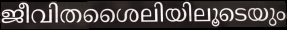
ജീവിതശൈലിയിലൂടെയും